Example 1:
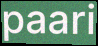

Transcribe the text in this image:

paari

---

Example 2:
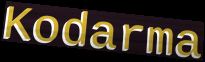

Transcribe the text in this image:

Kodarma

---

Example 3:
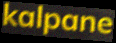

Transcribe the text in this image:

kalpane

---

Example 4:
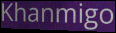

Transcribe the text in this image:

Khanmigo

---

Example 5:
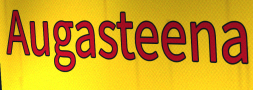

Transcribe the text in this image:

Augasteena